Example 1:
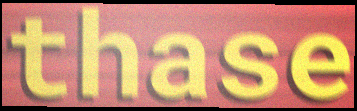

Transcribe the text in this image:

thase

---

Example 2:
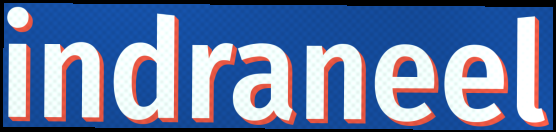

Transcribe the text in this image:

indraneel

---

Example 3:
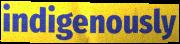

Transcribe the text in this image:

indigenously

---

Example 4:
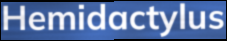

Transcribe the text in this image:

Hemidactylus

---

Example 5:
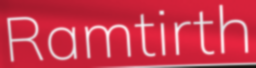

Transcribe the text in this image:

Ramtirth